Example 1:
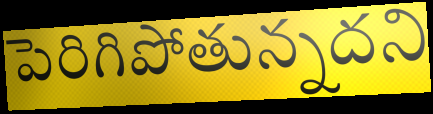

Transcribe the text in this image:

పెరిగిపోతున్నదని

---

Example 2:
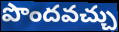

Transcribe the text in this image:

పొందవచ్చు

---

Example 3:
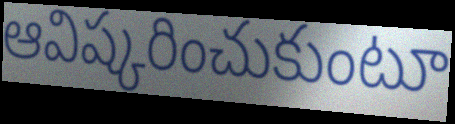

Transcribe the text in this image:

ఆవిష్కరించుకుంటూ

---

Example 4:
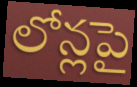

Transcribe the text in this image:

లోన్లపై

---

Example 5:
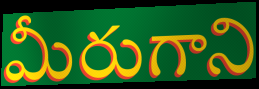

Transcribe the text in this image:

మీరుగాని